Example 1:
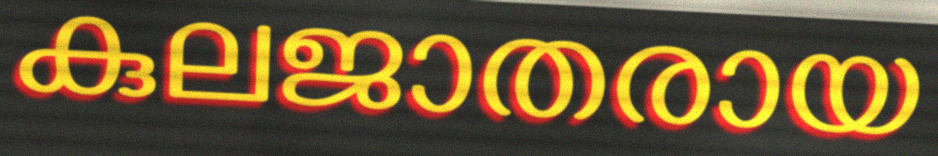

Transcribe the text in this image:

കുലജാതരായ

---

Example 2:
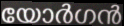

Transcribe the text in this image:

യോർഗൻ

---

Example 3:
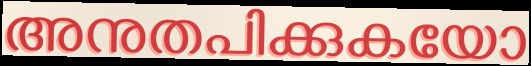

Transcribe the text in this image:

അനുതപിക്കുകയോ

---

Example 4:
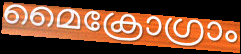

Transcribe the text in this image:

മൈക്രോഗ്രാം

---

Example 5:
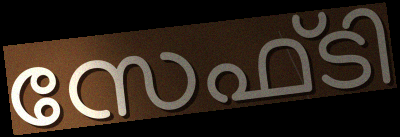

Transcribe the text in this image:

സേഫ്ടി